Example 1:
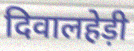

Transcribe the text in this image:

दिवालहेड़ी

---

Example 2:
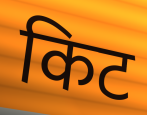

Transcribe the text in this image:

किट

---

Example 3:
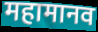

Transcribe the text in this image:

महामानव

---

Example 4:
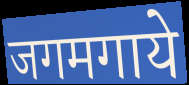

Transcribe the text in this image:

जगमगाये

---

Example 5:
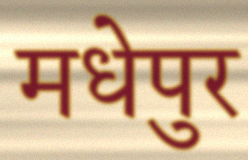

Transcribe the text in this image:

मधेपुर